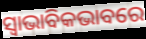
ସ୍ୱାଭାବିକଭାବରେ